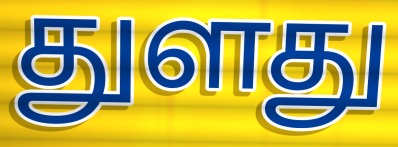
துளது